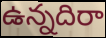
ఉన్నదిరా